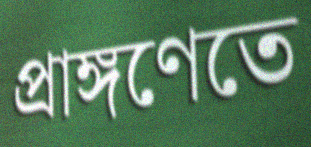
প্রাঙ্গণেতে